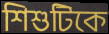
শিশুটিকে